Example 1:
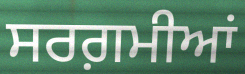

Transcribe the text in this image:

ਸਰਗ਼ਮੀਆਂ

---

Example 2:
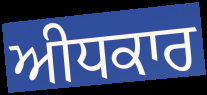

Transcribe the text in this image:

ਅੀਧਕਾਰ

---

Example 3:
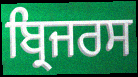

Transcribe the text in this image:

ਬ੍ਰਿਜਰਸ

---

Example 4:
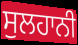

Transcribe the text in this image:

ਸੁਲਹਾਨੀ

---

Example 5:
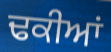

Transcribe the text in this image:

ਢਕੀਆਂ